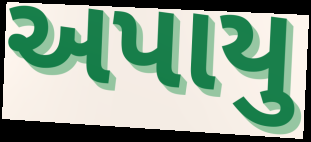
અપાયુ